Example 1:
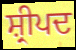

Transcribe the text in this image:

ਸ਼੍ਰੀਪਦ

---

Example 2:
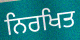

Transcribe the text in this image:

ਨਿਰਖਿਤ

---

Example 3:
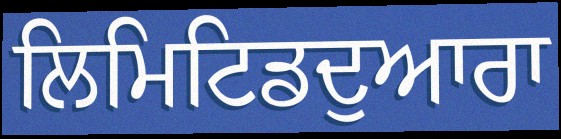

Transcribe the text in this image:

ਲਿਮਿਟਿਡਦੁਆਰਾ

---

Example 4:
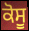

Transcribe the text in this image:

ਕੋਸੂ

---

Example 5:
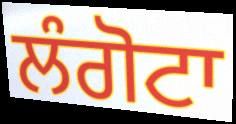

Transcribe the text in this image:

ਲੰਗੋਟਾ